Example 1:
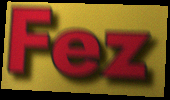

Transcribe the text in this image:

Fez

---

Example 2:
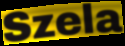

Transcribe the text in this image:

Szela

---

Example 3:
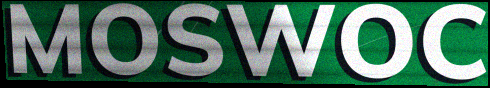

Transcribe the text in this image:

MOSWOC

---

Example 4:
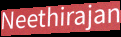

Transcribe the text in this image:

Neethirajan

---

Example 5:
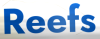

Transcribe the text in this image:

Reefs